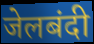
जेलबंदी